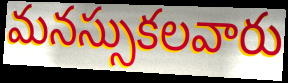
మనస్సుకలవారు